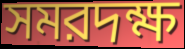
সমরদক্ষ